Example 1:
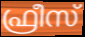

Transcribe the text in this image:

ഫ്രീസ്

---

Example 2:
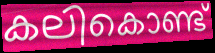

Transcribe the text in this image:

കലികൊണ്ട്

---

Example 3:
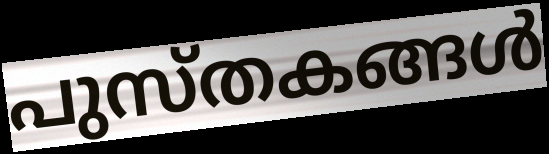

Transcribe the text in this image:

പുസ്തകങ്ങൾ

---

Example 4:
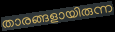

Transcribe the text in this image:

താരങ്ങളായിരുന്ന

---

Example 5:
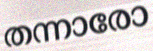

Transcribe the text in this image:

തന്നാരോ